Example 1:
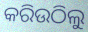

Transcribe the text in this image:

କରିଉଠିଲୁ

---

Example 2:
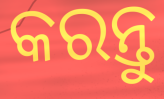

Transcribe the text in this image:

କରନ୍ତୁ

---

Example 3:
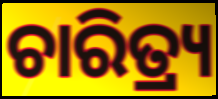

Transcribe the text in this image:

ଚାରିତ୍ର୍ୟ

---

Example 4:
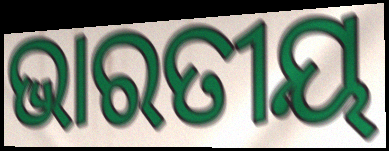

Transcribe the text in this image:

ଭାରତୀୟ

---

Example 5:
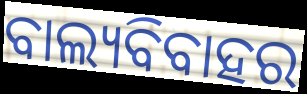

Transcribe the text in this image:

ବାଲ୍ୟବିବାହର